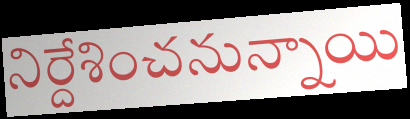
నిర్దేశించనున్నాయి